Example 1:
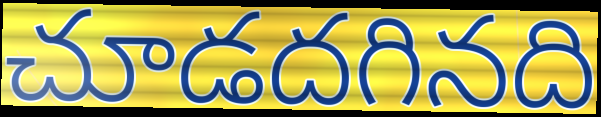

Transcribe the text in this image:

చూడదగినది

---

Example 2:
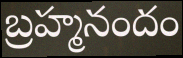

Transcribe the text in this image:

బ్రహ్మనందం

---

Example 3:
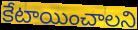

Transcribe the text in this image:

కేటాయించాలని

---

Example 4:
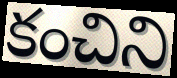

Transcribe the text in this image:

కంచిని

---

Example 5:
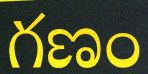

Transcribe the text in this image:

గణం